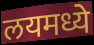
लयमध्ये